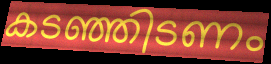
കടഞ്ഞിടണം